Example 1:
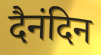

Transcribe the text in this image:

दैनंदिन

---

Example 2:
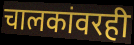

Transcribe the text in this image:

चालकांवरही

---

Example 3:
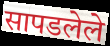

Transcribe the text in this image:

सापडलेले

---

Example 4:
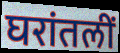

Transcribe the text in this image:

घरांतलीं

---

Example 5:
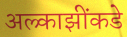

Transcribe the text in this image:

अल्काझींकडे